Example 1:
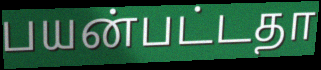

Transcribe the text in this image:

பயன்பட்டதா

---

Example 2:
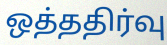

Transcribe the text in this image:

ஒத்ததிர்வு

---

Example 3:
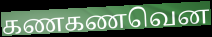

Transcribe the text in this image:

கணகணவென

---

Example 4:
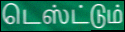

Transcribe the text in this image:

டெஸ்ட்டும்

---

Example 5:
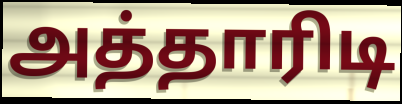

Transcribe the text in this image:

அத்தாரிடி